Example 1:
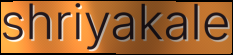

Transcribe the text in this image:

shriyakale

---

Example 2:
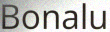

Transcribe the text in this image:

Bonalu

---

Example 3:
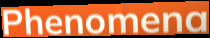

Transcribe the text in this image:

Phenomena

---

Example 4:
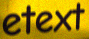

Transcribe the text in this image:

etext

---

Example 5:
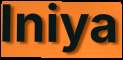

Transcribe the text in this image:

Iniya